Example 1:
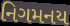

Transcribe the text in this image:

નિગમનય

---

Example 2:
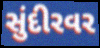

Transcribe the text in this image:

સુંદીરવર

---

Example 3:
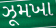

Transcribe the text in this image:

ઝૂમખા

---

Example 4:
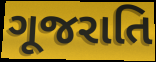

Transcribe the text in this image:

ગૂજરાતિ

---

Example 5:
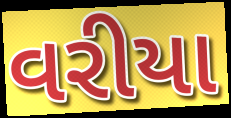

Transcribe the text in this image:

વરીયા